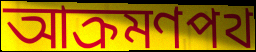
আক্রমণপথ